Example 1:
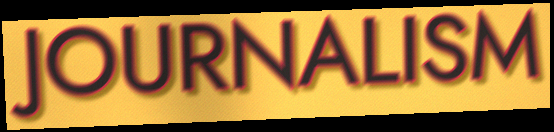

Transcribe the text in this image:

JOURNALISM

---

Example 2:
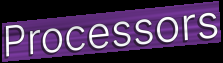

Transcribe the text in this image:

Processors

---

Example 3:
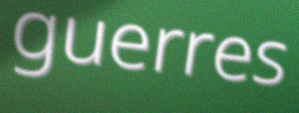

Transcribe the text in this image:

guerres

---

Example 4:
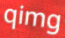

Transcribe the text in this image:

qimg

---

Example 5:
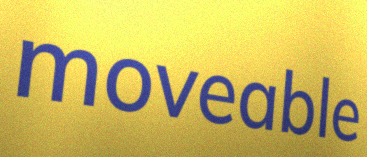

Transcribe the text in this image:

moveable